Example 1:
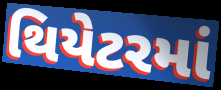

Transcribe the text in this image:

થિયેટરમાં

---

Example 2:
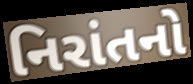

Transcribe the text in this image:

નિરાંતનો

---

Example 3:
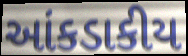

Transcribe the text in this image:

આંકડાકીય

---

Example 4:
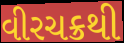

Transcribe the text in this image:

વીરચક્રથી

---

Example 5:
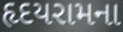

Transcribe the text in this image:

હૃદયરામના